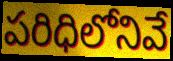
పరిధిలోనివే